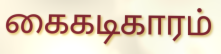
கைகடிகாரம்